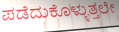
ಪಡೆದುಕೊಳ್ಳುತ್ತಲೇ